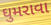
ઘુમરાવા